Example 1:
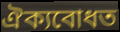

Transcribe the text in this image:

ঐক্যবোধত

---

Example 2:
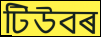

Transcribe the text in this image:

টিউবৰ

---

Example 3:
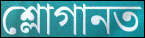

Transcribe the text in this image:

শ্লোগানত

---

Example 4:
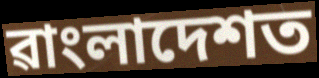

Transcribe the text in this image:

ৱাংলাদেশত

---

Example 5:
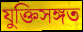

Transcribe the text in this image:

যুক্তিসঙ্গত